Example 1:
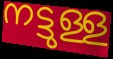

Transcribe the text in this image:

നട്ടുള്ള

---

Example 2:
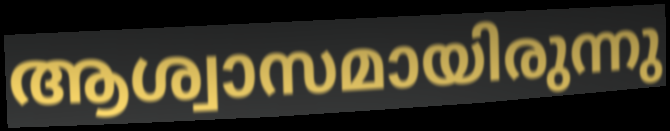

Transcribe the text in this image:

ആശ്വാസമായിരുന്നു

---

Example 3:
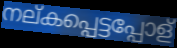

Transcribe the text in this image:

നല്കപ്പെട്ടപ്പോള്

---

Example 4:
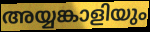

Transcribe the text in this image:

അയ്യങ്കാളിയും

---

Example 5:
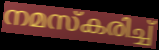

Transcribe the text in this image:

നമസ്‌കരിച്ച്